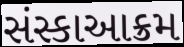
સંસ્કાઆક્રમ